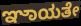
ಞಾಯತೇ